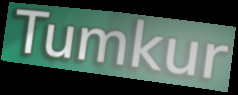
Tumkur